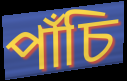
পাঁচি